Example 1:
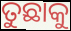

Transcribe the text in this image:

ତୁଛାକୁ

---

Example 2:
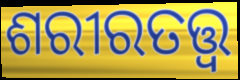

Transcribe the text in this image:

ଶରୀରତତ୍ତ୍ୱ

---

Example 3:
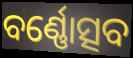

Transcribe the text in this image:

ବର୍ଣ୍ଣୋତ୍ସବ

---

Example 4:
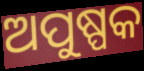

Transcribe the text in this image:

ଅପୁଷ୍ପକ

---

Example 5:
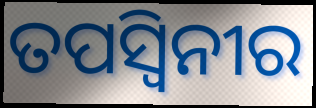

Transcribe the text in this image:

ତପସ୍ୱିନୀର